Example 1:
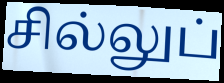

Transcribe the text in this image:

சில்லுப்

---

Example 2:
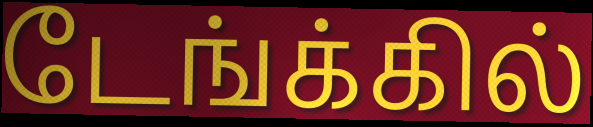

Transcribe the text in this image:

டேங்க்கில்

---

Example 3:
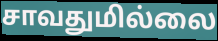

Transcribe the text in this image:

சாவதுமில்லை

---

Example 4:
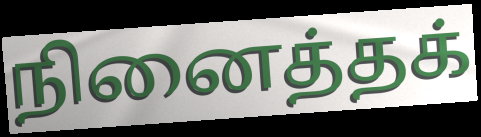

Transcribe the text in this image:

நினைத்தக்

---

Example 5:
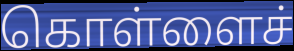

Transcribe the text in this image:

கொள்ளைச்